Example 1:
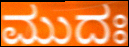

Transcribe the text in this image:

ಮುದಃ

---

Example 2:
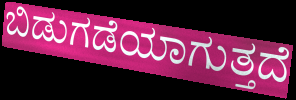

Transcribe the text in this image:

ಬಿಡುಗಡೆಯಾಗುತ್ತದೆ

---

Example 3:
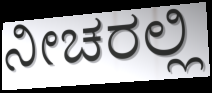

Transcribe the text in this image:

ನೀಚರಲ್ಲಿ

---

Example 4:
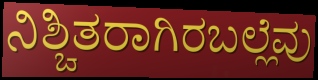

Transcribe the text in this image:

ನಿಶ್ಚಿತರಾಗಿರಬಲ್ಲೆವು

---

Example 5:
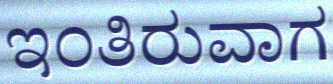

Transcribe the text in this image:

ಇಂತಿರುವಾಗ